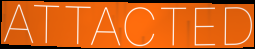
ATTACTED